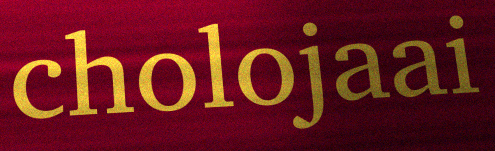
cholojaai